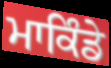
ਮਾਕਿੰਡੇ